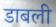
डाबली